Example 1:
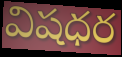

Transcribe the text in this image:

విషధర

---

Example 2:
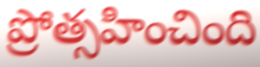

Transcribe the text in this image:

ప్రోత్సహించింది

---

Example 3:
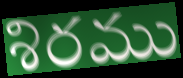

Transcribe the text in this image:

శిరము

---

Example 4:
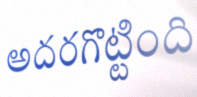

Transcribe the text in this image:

అదరగొట్టింది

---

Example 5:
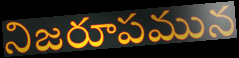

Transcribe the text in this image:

నిజరూపమున